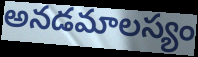
అనడమాలస్యం